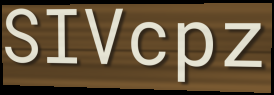
SIVcpz